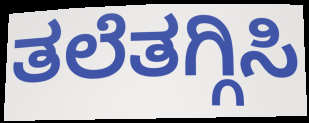
ತಲೆತಗ್ಗಿಸಿ